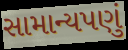
સામાન્યપણું